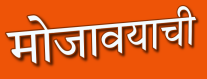
मोजावयाची